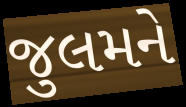
જુલમને